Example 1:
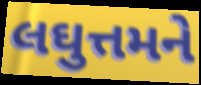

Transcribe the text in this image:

લઘુત્તમને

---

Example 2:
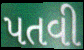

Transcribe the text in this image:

પતવી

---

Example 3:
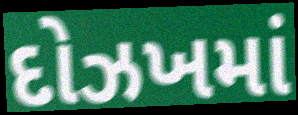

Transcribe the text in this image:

દોઝખમાં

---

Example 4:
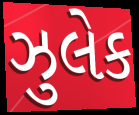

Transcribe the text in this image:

ઝુલેક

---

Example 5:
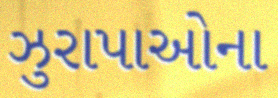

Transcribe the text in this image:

ઝુરાપાઓના